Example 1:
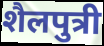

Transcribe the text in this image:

शैलपुत्री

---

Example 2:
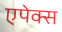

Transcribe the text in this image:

एपेक्स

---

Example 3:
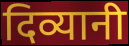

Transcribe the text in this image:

दिव्यानी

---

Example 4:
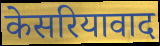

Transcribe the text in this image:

केसरियावाद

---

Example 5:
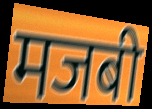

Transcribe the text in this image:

मजबी